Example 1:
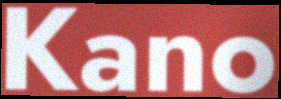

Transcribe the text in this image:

Kano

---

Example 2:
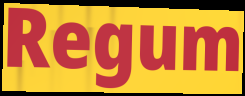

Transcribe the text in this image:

Regum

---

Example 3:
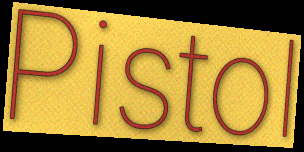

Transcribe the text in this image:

Pistol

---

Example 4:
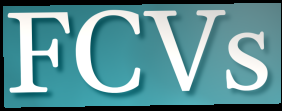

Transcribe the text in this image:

FCVs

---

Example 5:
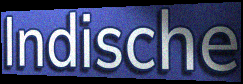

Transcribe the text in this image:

Indische